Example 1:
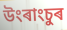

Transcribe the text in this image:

উংৰাংচুৰ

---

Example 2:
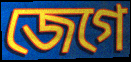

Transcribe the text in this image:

জেগে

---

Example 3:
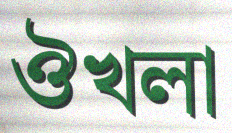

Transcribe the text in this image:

ঔখলা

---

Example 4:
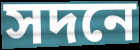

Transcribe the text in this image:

সদনে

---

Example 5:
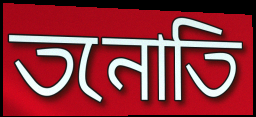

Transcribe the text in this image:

তনোতি